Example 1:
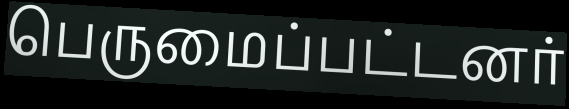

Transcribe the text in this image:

பெருமைப்பட்டனர்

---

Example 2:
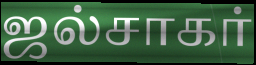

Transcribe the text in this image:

ஜல்சாகர்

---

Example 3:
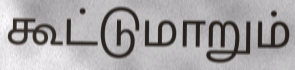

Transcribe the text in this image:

கூட்டுமாறும்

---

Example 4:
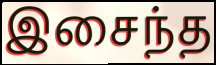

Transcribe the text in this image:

இசைந்த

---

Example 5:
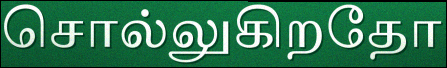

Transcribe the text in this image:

சொல்லுகிறதோ